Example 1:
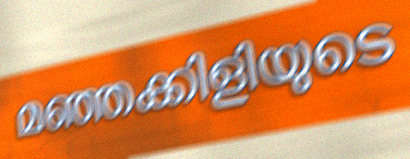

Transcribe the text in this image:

മഞ്ഞക്കിളിയുടെ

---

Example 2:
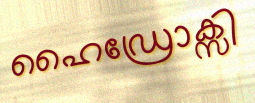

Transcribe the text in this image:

ഹൈഡ്രോക്സി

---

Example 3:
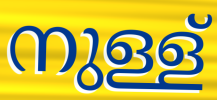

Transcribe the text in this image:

നുള്ള്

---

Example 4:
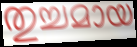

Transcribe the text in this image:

തുച്ചമായ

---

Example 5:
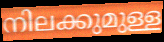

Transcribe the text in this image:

നിലക്കുമുള്ള